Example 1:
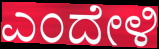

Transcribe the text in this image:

ಎಂದೇಳಿ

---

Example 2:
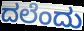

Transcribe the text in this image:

ದಲೆಂದು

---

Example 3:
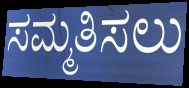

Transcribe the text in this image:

ಸಮ್ಮತಿಸಲು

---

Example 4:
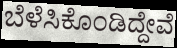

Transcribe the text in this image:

ಬೆಳೆಸಿಕೊಂಡಿದ್ದೇವೆ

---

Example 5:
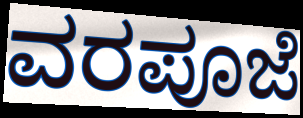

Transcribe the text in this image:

ವರಪೂಜೆ